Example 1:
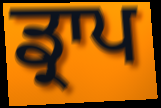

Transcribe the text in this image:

ਡ੍ਰਾਪ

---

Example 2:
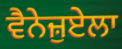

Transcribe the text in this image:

ਵੈਨੇਜ਼ੁਏਲਾ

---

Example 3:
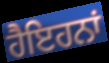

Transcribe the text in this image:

ਹੈਇਹਨਾਂ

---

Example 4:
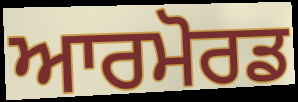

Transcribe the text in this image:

ਆਰਮੋਰਡ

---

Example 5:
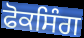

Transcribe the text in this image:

ਫੋਕਸਿੰਗ